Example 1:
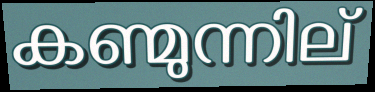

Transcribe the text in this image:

കണ്മുന്നില്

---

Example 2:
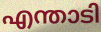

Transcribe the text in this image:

എന്താടി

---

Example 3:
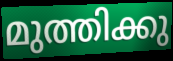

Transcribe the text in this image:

മുത്തിക്കു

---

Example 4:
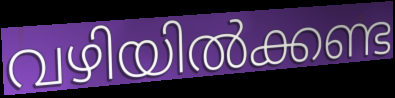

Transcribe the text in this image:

വഴിയിൽക്കണ്ട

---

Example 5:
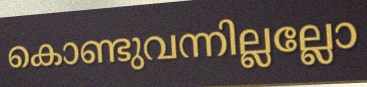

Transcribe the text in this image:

കൊണ്ടുവന്നില്ലല്ലോ